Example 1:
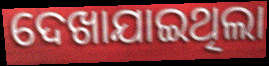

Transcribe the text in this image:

ଦେଖାଯାଇଥିଲା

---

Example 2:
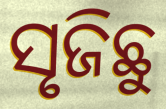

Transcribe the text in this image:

ସୃଜିଛୁ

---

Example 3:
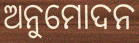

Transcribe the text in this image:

ଅନୁମୋଦନ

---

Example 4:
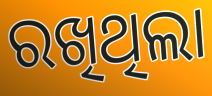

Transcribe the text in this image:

ରଖିଥିଲା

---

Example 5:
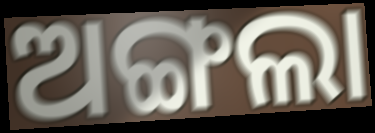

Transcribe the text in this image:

ଅଙ୍ଗଲା